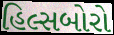
હિલ્સબોરો